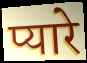
प्यारे